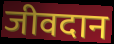
जीवदान